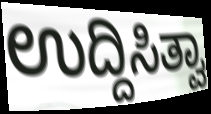
ಉದ್ದಿಸಿತ್ವಾ